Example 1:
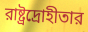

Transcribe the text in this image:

রাষ্ট্রদ্রোহীতার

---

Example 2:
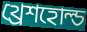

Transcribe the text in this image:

থ্রেশহোল্ড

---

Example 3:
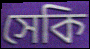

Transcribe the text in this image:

সেকি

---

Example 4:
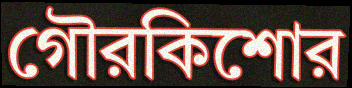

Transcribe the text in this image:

গৌরকিশোর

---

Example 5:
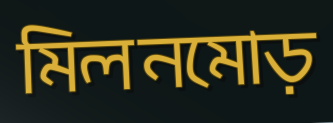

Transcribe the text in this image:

মিলনমোড়